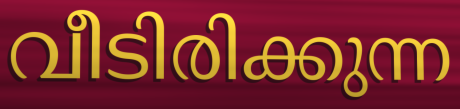
വീടിരിക്കുന്ന